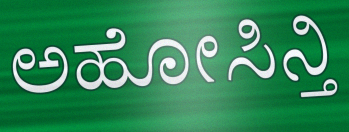
ಅಹೋಸಿನ್ತಿ